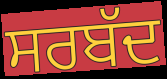
ਸਰਬੱਦ